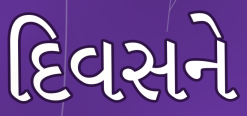
દિવસને